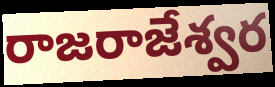
రాజరాజేశ్వర